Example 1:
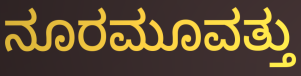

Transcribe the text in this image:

ನೂರಮೂವತ್ತು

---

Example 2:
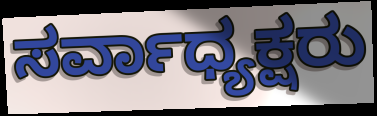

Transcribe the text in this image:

ಸರ್ವಾಧ್ಯಕ್ಷರು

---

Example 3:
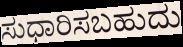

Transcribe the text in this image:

ಸುಧಾರಿಸಬಹುದು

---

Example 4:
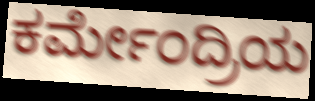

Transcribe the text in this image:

ಕರ್ಮೇಂದ್ರಿಯ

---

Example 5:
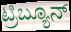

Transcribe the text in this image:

ಟ್ರಿಬ್ಯೂನ್